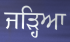
ਜੜ੍ਹਿਆ